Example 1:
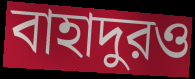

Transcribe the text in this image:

বাহাদুরও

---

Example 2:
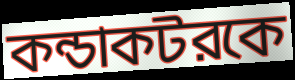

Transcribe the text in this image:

কন্ডাকটরকে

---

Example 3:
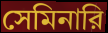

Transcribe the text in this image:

সেমিনারি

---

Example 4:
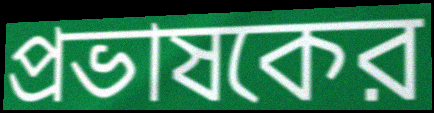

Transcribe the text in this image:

প্রভাষকের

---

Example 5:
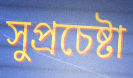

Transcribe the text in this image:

সুপ্রচেষ্টা